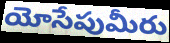
యోసేపుమీరు